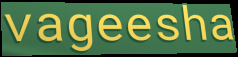
vageesha